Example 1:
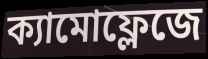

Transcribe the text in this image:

ক্যামোফ্লেজে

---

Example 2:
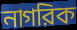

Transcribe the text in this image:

নাগরিক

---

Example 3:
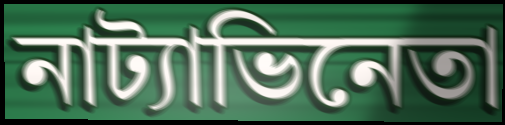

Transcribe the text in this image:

নাট্যাভিনেতা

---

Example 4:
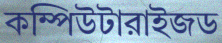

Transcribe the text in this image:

কম্পিউটারাইজড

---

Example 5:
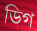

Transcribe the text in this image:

ডিগ